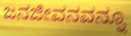
ಜನಜೀವನವನ್ನೂ